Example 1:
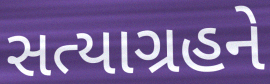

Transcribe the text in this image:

સત્યાગ્રહને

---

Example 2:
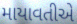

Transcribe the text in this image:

માયાવતીએ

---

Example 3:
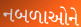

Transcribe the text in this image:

નબળાઓને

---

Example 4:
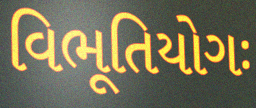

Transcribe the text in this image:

વિભૂતિયોગઃ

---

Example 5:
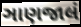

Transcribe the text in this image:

ઞાણજાલં